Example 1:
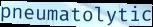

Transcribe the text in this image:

pneumatolytic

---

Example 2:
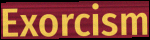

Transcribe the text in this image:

Exorcism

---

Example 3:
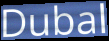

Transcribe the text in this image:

Dubal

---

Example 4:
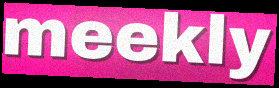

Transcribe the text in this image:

meekly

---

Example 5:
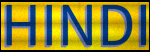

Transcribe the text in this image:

HINDI